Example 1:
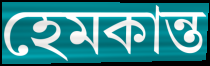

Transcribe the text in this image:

হেমকান্ত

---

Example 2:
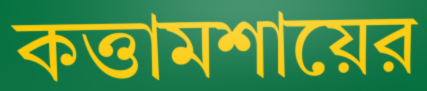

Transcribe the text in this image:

কত্তামশায়ের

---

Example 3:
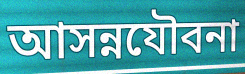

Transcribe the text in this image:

আসন্নযৌবনা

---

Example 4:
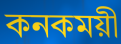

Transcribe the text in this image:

কনকময়ী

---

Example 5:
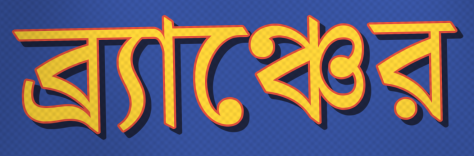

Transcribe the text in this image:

ব্র্যাঞ্চের